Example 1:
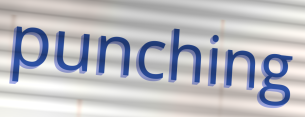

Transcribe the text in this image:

punching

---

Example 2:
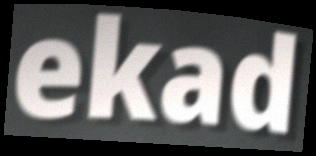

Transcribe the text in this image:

ekad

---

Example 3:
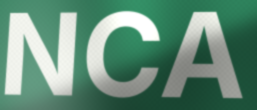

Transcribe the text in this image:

NCA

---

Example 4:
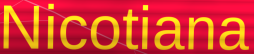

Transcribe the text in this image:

Nicotiana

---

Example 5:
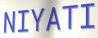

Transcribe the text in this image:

NIYATI